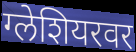
ग्लेशियरवर